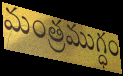
మంత్రముగ్ధం